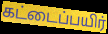
கட்டைப்பயிர்